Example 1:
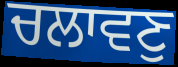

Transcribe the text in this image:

ਚਲਾਵਣੁ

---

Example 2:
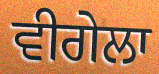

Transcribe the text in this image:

ਵੀਗੇਲਾ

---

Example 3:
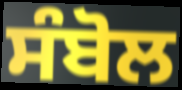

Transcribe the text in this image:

ਸੰਬੋਲ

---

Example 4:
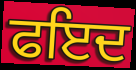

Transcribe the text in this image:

ਫਇਦ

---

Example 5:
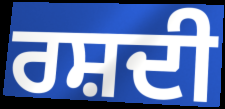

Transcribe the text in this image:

ਰਸ਼ਦੀ